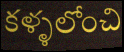
కళ్ళలోంచి